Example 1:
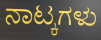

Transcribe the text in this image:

ನಾಟ್ಕಗಳು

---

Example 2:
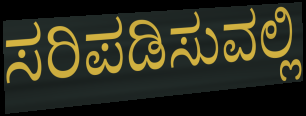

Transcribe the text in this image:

ಸರಿಪಡಿಸುವಲ್ಲಿ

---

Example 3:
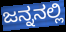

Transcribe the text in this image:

ಜನ್ನನಲ್ಲಿ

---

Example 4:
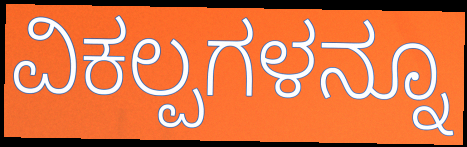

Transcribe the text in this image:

ವಿಕಲ್ಪಗಳನ್ನೂ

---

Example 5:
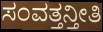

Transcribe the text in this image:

ಸಂವತ್ತನ್ತೀತಿ